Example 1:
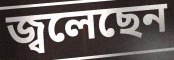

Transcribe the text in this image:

জ্বলেছেন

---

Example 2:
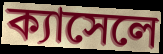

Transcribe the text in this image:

ক্যাসেলে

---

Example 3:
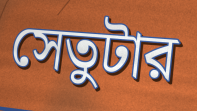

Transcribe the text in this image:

সেতুটার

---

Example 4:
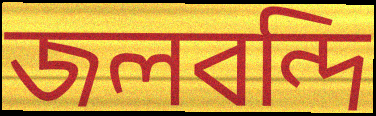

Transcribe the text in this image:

জলবন্দি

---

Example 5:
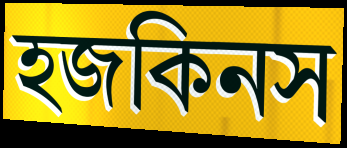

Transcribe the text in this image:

হজকিনস